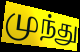
முந்து